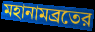
মহানামব্রতের